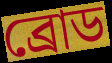
ব্রোড